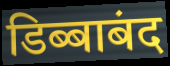
डिब्बाबंद